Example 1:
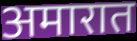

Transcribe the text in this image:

अमारात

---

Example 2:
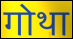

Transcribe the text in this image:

गोथा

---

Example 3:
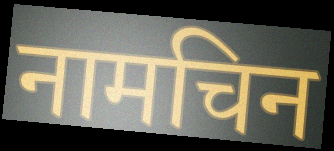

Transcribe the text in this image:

नामचिन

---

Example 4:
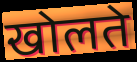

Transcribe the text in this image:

खोलते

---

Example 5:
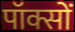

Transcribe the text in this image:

पॉक्सों